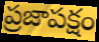
ప్రజాపక్షం